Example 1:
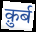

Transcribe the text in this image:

क़ुर्ब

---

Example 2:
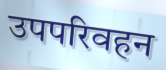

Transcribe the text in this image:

उपपरिवहन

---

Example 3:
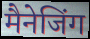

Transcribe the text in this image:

मैनेजिंग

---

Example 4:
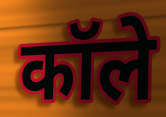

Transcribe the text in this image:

कॉले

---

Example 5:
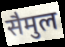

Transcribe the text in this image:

सैमुल